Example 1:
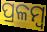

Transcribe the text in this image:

ପ୍ରଳମ୍ବ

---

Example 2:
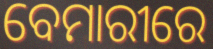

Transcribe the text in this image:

ବେମାରୀରେ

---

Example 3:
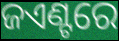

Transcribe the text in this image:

ଜଏଣ୍ଟରେ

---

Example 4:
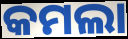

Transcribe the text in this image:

କମଲା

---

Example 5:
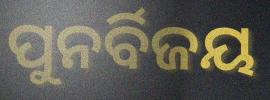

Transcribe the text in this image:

ପୁନର୍ବିଜୟ